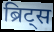
ब्रिट्स